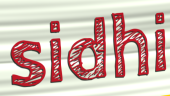
sidhi